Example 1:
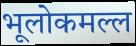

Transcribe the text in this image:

भूलोकमल्ल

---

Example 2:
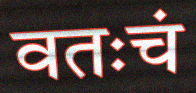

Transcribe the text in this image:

वतःचं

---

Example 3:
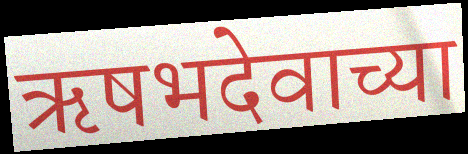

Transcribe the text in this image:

ऋषभदेवाच्या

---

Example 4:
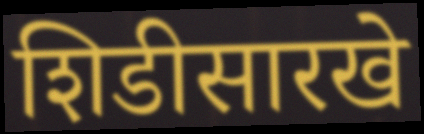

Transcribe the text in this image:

शिडीसारखे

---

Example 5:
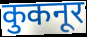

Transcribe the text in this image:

कुकनूर